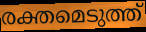
രക്തമെടുത്ത്